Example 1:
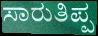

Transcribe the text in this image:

ಸಾರುತಿಪ್ಪ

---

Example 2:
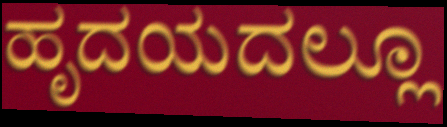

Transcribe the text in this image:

ಹೃದಯದಲ್ಲೂ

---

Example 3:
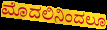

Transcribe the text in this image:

ಮೊದಲಿನಿಂದಲೂ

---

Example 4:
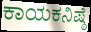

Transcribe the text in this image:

ಕಾಯಕನಿಷ್ಠೆ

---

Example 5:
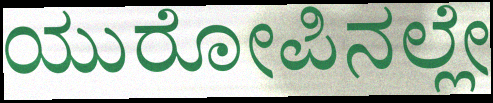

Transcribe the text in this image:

ಯುರೋಪಿನಲ್ಲೇ